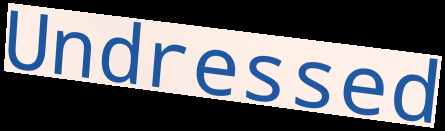
Undressed